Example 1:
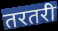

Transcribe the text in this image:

तरतरी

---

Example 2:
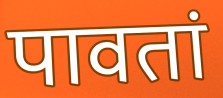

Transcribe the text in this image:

पावतां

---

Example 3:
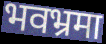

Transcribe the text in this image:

भवभ्रमा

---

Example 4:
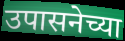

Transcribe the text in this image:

उपासनेच्या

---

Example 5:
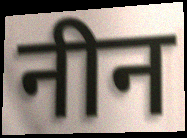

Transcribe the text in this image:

नीन